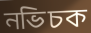
নভিচক